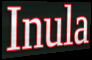
Inula